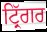
ਟ੍ਰਿੱਗਰ